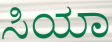
ಸಿಯಾ